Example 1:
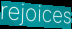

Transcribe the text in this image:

rejoices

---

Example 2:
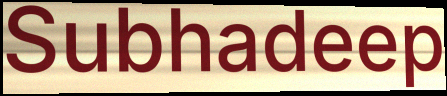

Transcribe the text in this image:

Subhadeep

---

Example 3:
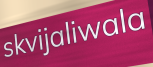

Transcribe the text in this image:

skvijaliwala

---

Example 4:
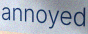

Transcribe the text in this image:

annoyed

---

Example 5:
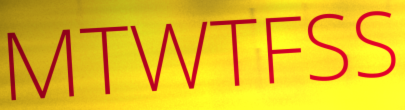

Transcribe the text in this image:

MTWTFSS